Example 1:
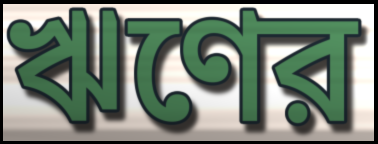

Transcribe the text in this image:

ঋণের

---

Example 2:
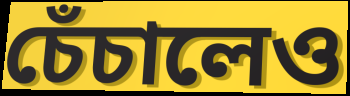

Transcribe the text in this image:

চেঁচালেও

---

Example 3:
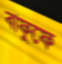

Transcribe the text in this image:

বাফুফে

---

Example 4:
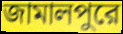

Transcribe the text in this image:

জামালপুরে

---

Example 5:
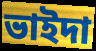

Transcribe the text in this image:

ভাইদা